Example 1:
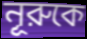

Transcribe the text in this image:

নূরুকে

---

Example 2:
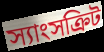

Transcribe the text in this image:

স্যাংসক্রিট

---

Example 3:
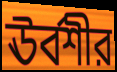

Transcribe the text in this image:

ঊর্বশীর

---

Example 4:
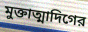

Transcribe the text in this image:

মুক্তাত্মাদিগের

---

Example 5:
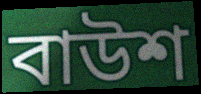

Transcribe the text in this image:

বাউশ